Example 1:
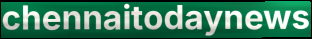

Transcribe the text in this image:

chennaitodaynews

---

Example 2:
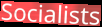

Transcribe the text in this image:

Socialists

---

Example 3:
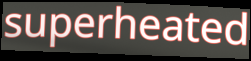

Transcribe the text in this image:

superheated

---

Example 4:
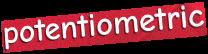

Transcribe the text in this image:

potentiometric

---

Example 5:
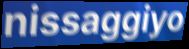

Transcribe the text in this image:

nissaggiyo